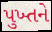
પુખ્તને